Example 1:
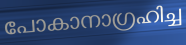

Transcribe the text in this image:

പോകാനാഗ്രഹിച്ച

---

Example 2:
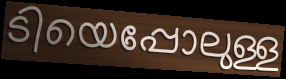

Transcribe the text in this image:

ടിയെപ്പോലുള്ള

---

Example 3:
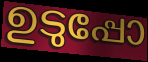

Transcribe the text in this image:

ഉടുപ്പോ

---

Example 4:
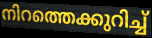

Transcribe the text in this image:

നിറത്തെക്കുറിച്ച്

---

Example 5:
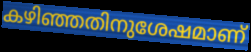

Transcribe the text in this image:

കഴിഞ്ഞതിനുശേഷമാണ്